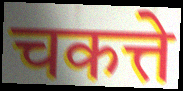
चकत्ते